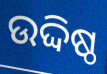
ଉଦ୍ଦିଷ୍ଠ